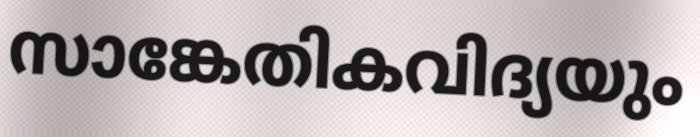
സാങ്കേതികവിദ്യയും